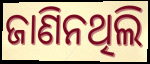
ଜାଣିନଥିଲି